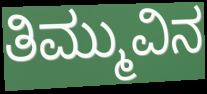
ತಿಮ್ಮುವಿನ